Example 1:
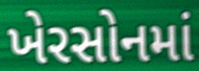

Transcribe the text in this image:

ખેરસોનમાં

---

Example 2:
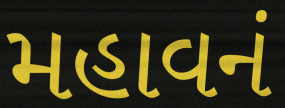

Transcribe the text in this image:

મહાવનં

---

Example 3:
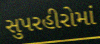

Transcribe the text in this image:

સુપરહીરોમાં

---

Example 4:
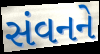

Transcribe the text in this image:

સંવનને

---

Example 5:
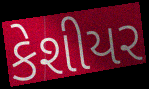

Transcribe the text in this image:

કેશીયર